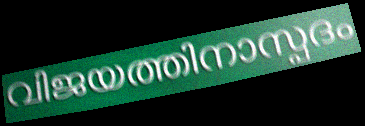
വിജയത്തിനാസ്പദം